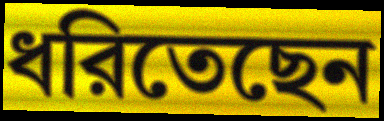
ধরিতেছেন